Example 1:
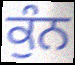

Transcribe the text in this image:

ਕੁੰਨ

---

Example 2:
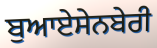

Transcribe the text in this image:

ਬੁਆਏਸੇਨਬੇਰੀ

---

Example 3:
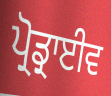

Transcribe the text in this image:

ਪ੍ਰੋਡ੍ਰਾਈਵ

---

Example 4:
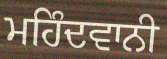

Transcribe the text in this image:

ਮਹਿੰਦਵਾਨੀ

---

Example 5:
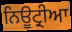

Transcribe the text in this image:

ਨਿਊਟ੍ਰੀਆ